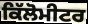
ਕਿੱਲੋਮੀਟਰ